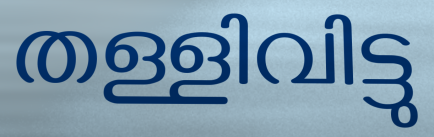
തള്ളിവിട്ടു